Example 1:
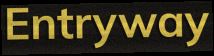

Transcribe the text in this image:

Entryway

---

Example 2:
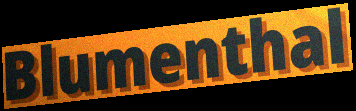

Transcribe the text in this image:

Blumenthal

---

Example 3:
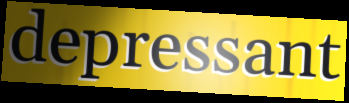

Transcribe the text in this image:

depressant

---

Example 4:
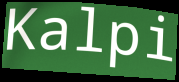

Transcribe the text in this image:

Kalpi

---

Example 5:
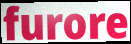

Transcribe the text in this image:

furore